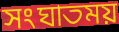
সংঘাতময়